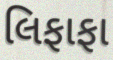
લિફાફા